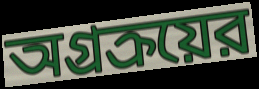
অগ্রক্রয়ের